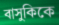
বাসুকিকে